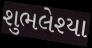
શુભલેશ્યા